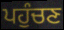
ਪਹੁੰਚਣ